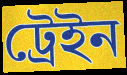
ট্ৰেইন